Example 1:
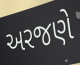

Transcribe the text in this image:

અરજણે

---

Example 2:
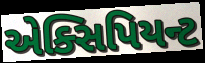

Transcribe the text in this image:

એક્સિપિયન્ટ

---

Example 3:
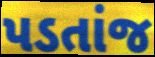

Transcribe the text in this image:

પડતાંજ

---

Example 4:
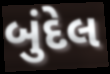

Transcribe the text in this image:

બુંદેલ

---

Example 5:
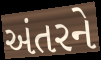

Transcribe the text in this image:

અંતરને